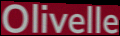
Olivelle